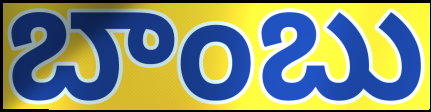
బాంబు